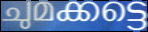
ചുമക്കട്ടെ